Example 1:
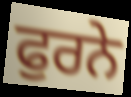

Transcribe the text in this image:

ਫੁਰਨੇ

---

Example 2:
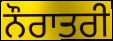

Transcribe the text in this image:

ਨੌਰਾਤਰੀ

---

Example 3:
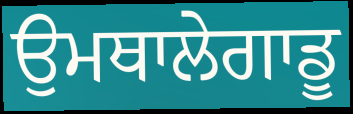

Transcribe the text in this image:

ਉਮਥਾਲੇਗਾਡੂ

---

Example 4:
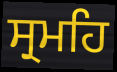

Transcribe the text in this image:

ਸ੍ਰਮਹਿ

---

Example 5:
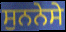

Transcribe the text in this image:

ਸੁਨਨੇਸੇ